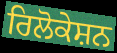
ਰਿਲੋਕੇਸ਼ਨ